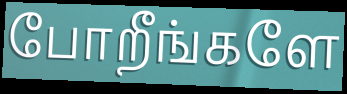
போறீங்களே